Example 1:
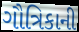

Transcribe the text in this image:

ગૌત્રિકાની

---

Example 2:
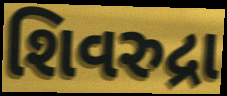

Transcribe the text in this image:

શિવરુદ્રા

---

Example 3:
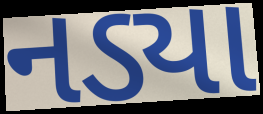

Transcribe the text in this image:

નડ્યા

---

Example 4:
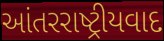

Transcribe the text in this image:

આંતરરાષ્ટ્રીયવાદ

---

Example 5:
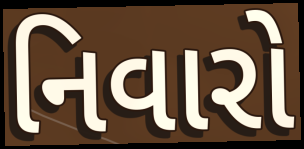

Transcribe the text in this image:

નિવારો